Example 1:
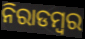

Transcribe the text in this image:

ନିରାଡମ୍ବର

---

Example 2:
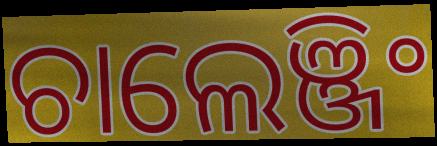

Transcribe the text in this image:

ଚାଲେଞ୍ଜିଂ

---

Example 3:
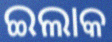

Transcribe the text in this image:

ଇଲାକ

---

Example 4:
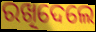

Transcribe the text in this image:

ରଖିଦେଲେ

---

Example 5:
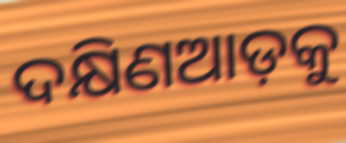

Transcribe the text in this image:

ଦକ୍ଷିଣଆଡ଼କୁ